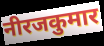
नीरजकुमार